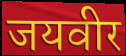
जयवीर